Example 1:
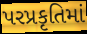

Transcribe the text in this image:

પરપ્રકૃતિમાં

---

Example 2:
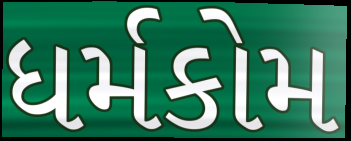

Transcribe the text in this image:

ધર્મકોમ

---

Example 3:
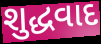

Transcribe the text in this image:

શુદ્ધવાદ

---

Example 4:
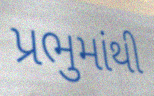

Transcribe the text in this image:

પ્રભુમાંથી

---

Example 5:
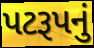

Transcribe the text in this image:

પટરૂપનું